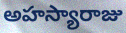
అహస్యారాజు